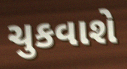
ચુકવાશે